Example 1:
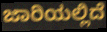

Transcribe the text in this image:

ಜಾರಿಯಲ್ಲಿದೆ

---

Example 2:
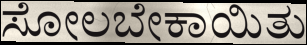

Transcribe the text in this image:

ಸೋಲಬೇಕಾಯಿತು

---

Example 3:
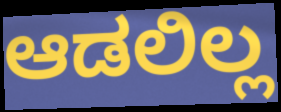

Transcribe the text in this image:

ಆಡಲಿಲ್ಲ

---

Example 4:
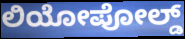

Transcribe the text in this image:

ಲಿಯೋಪೋಲ್ಡ್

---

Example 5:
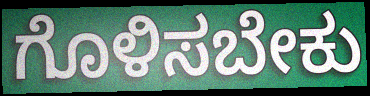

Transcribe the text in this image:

ಗೊಳಿಸಬೇಕು